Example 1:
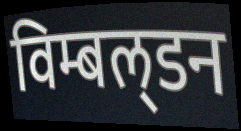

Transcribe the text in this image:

विम्बल्डन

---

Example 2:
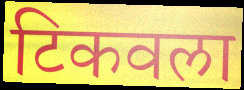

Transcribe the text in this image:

टिकवला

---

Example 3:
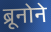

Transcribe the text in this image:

ब्रूनोने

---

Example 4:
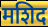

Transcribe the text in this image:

मशिद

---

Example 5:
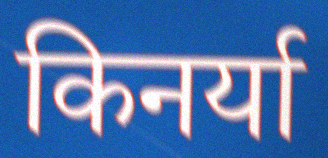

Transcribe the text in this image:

किनर्या